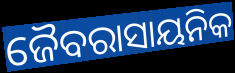
ଜୈବରାସାୟନିକ